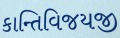
કાન્તિવિજયજી